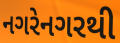
નગરેનગરથી